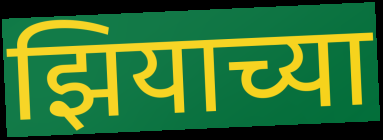
झियाच्या